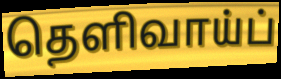
தெளிவாய்ப்